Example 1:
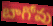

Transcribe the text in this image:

బాగోవు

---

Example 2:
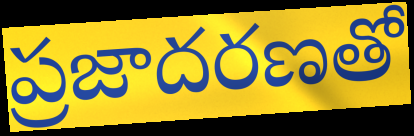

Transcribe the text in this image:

ప్రజాదరణతో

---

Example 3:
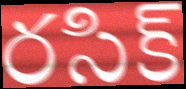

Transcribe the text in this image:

రసిక్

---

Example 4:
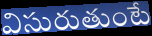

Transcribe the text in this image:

విసురుతుంటే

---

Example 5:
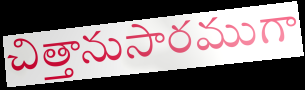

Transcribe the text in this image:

చిత్తానుసారముగా